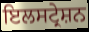
ਇਲਸਟ੍ਰੇਸ਼ਨ